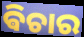
ଵିଚାର